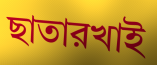
ছাতারখাই